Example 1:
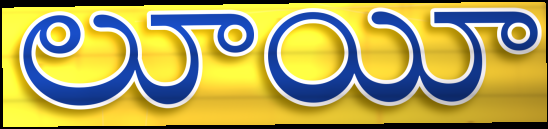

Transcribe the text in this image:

లూయీ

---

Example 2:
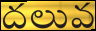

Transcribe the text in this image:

దలువ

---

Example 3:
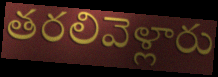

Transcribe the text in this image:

తరలివెళ్లారు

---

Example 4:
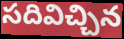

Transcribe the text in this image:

సదివిచ్చిన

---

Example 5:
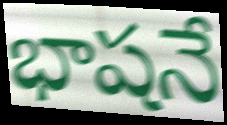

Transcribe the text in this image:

భాషనే